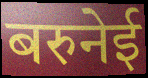
बरुनेई